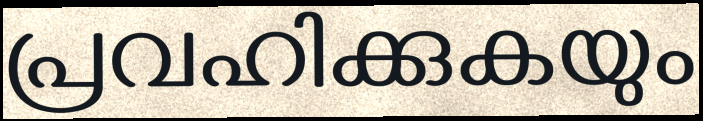
പ്രവഹിക്കുകയും